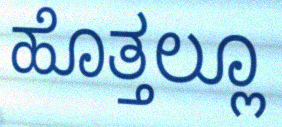
ಹೊತ್ತಲ್ಲೂ